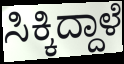
ಸಿಕ್ಕಿದ್ದಾಳೆ